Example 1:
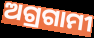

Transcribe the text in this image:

ଅଗ୍ରଗାମୀ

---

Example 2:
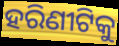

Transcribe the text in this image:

ହରିଣୀଟିକୁ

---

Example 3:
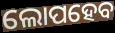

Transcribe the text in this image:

ଲୋପହେବ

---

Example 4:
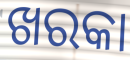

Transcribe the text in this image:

ଖରକା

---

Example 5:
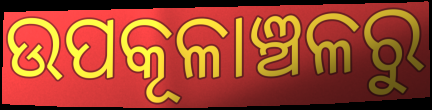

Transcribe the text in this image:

ଉପକୂଳାଞ୍ଚଳରୁ